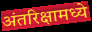
अंतरिक्षामध्ये